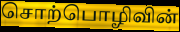
சொற்பொழிவின்